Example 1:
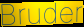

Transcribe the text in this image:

Bruder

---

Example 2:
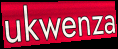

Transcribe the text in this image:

ukwenza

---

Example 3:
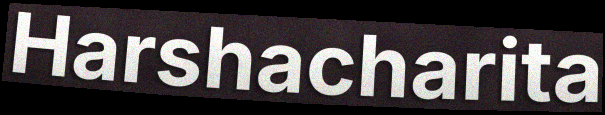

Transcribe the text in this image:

Harshacharita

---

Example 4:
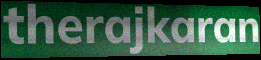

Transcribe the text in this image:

therajkaran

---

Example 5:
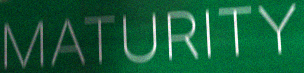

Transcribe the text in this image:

MATURITY